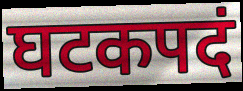
घटकपदं